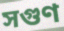
সগুণ